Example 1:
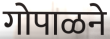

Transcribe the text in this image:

गोपाळने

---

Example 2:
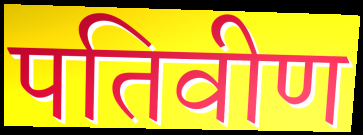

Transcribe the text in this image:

पतिवीण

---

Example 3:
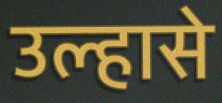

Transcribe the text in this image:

उल्हासे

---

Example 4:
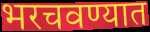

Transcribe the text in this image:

भरचवण्यात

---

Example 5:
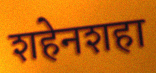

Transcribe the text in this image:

शहेनशहा